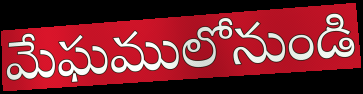
మేఘములోనుండి